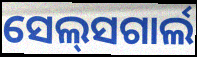
ସେଲ୍‍ସଗାର୍ଲ